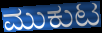
ಮುಕುಟ